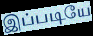
இப்படியே